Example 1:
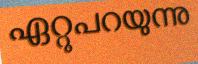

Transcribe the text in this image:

ഏറ്റുപറയുന്നു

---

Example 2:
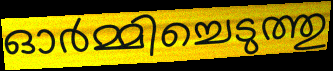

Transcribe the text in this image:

ഓർമ്മിച്ചെടുത്തു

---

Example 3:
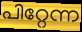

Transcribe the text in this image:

പിറ്റേന്ന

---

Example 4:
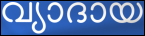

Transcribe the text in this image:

വ്യാദായ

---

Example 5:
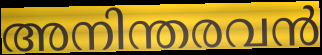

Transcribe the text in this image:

അനിന്തരവൻ